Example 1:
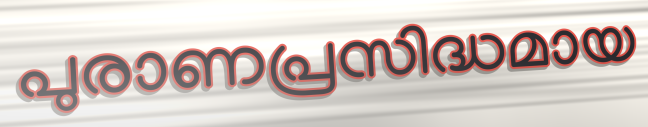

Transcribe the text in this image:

പുരാണപ്രസിദ്ധമായ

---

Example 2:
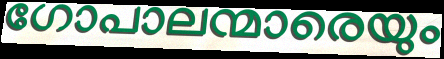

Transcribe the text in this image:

ഗോപാലന്മാരെയും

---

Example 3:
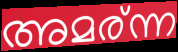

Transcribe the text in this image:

അമര്ന്ന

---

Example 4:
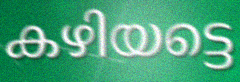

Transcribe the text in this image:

കഴിയട്ടെ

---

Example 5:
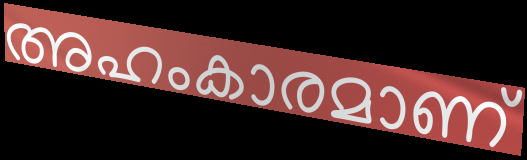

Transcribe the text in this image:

അഹംകാരമാണ്